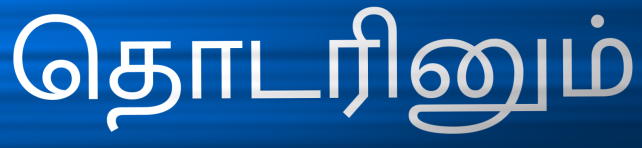
தொடரினும்